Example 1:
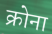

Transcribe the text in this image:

क्रोना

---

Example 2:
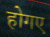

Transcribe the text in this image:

होगए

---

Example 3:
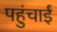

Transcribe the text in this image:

पहुंचाईं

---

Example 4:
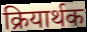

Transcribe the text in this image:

क्रियार्थक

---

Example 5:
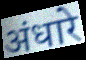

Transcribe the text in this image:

अंधारे